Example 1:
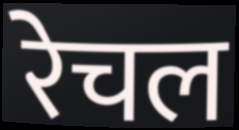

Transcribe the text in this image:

रेचल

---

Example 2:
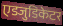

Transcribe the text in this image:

एडजुडिकेटर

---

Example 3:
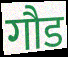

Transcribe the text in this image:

गौड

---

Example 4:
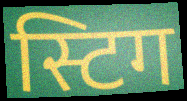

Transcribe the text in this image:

स्टिग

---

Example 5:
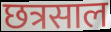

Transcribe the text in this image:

छत्रसाल